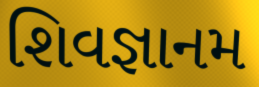
શિવજ્ઞાનમ